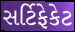
સર્ટિફેકેટ